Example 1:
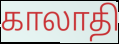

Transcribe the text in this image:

காலாதி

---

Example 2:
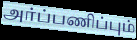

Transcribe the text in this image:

அர்ப்பணிப்பும்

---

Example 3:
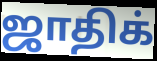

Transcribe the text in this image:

ஜாதிக்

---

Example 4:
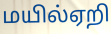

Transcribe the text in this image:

மயில்ஏறி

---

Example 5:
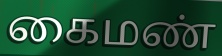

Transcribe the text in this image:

கைமண்